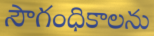
సౌగంధికాలను